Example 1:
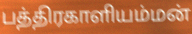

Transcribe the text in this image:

பத்திரகாளியம்மன்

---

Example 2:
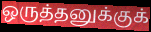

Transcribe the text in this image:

ஒருத்தனுக்குக்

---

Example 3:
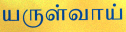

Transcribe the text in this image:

யருள்வாய்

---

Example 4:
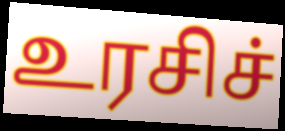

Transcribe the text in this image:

உரசிச்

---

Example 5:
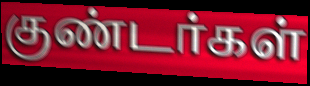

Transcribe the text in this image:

குண்டர்கள்